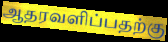
ஆதரவளிப்பதற்கு